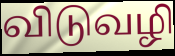
விடுவழி